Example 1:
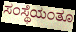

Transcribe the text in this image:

ಸಂಸ್ಥೆಯಂತೂ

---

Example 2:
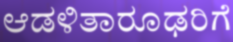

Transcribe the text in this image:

ಆಡಳಿತಾರೂಢರಿಗೆ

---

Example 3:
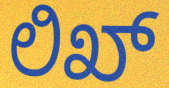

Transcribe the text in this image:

ಲಿಖ್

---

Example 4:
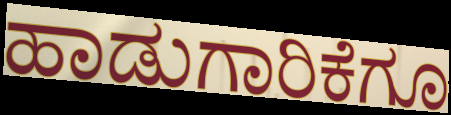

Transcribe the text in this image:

ಹಾಡುಗಾರಿಕೆಗೂ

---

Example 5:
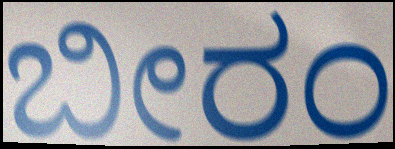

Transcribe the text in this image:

ಬೀರಂ